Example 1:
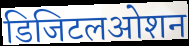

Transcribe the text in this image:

डिजिटलओशन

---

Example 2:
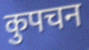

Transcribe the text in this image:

कुपचन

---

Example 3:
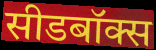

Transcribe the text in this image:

सीडबॉक्स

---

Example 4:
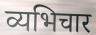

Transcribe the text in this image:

व्यभिचार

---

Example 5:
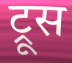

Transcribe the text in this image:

ट्रूस